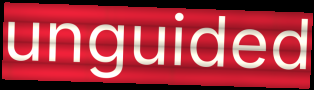
unguided